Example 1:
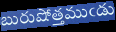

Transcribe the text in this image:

బురుషోత్తముఁడు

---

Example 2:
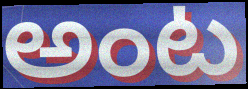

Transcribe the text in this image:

అంట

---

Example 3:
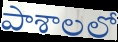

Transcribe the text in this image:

పాశాలలో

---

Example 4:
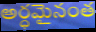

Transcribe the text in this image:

అర్ధమైనంత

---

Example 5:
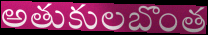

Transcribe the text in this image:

అతుకులబొంత